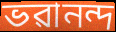
ভৱানন্দ